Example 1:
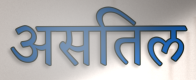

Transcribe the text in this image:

असतिल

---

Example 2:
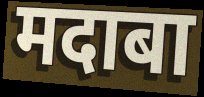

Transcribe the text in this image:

मदाबा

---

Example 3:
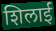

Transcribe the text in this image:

शिलाई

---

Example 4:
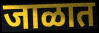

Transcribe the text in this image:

जाळात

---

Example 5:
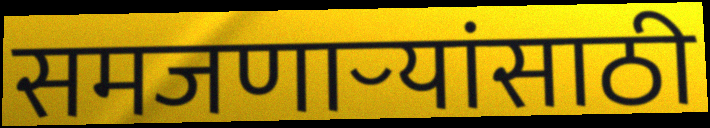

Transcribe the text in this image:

समजणाऱ्यांसाठी